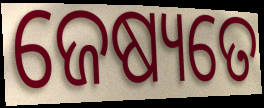
ଜେଷ୍ୟତେ